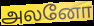
அலனோ